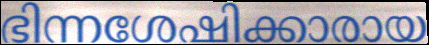
ഭിന്നശേഷിക്കാരായ